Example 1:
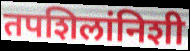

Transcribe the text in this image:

तपशिलांनिशी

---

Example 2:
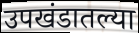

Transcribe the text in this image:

उपखंडातल्या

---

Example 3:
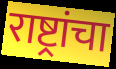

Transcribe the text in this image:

राष्ट्रांचा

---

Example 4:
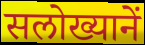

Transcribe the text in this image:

सलोख्यानें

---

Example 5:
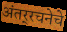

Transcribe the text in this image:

अंतर्रचनेचे